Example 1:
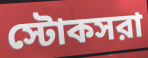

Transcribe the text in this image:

স্টোকসরা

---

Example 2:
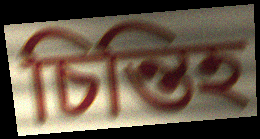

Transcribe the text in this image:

চিন্তিহ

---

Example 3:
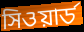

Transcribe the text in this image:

সিওয়ার্ড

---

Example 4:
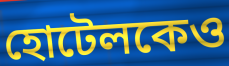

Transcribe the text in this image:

হোটেলকেও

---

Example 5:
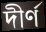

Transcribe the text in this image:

দীর্ণ